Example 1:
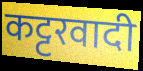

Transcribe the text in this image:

कट्टरवादी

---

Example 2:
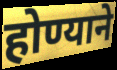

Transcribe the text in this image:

होण्याने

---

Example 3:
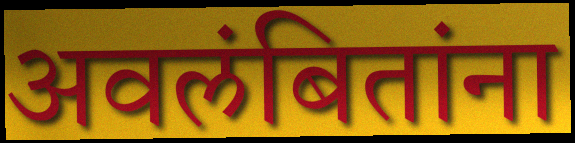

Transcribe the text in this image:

अवलंबितांना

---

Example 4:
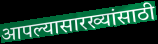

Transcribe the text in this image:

आपल्यासारख्यांसाठी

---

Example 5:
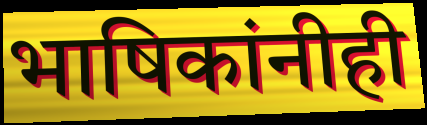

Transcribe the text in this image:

भाषिकांनीही